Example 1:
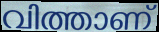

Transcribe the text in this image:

വിത്താണ്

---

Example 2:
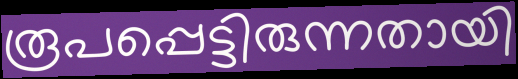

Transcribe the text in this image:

രൂപപ്പെട്ടിരുന്നതായി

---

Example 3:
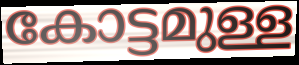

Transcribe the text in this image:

കോട്ടമുള്ള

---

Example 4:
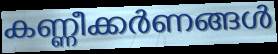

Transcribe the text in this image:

കണ്ണീക്കർണങ്ങൾ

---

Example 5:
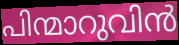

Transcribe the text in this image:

പിന്മാറുവിൻ